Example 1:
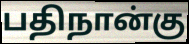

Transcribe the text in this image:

பதிநான்கு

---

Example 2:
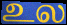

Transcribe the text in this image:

உல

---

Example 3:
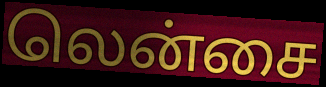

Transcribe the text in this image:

லென்சை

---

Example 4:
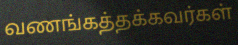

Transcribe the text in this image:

வணங்கத்தக்கவர்கள்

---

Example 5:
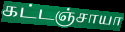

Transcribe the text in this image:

கட்டஞ்சாயா